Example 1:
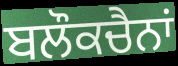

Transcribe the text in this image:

ਬਲੌਕਚੈਨਾਂ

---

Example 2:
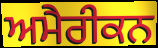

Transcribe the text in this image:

ਅਮੈਰੀਕਨ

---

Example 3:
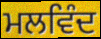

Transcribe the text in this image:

ਮਲਵਿੰਦ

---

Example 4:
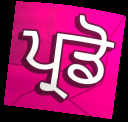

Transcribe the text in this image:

ਪ੍ਰਡੋ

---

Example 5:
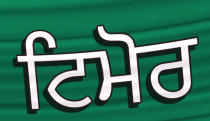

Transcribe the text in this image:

ਟਿਮੋਰ